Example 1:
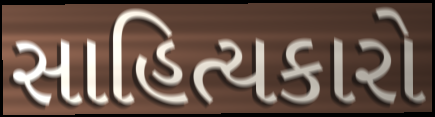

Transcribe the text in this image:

સાહિત્યકારો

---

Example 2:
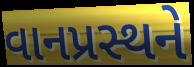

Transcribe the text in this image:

વાનપ્રસ્થને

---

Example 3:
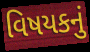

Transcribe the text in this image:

વિષયકનું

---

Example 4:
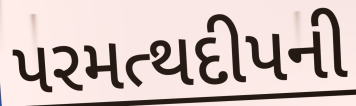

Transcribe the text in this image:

પરમત્થદીપની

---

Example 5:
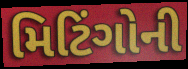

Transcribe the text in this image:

મિટિંગોની